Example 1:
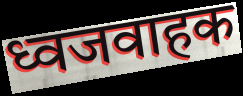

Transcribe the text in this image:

ध्वजवाहक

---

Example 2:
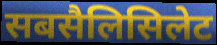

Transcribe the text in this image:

सबसैलिसिलेट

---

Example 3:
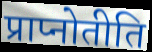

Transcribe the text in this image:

प्राप्नोतीति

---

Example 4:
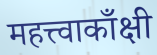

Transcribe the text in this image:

महत्त्वाकाँक्षी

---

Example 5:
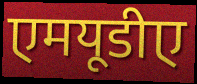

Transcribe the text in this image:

एमयूडीए